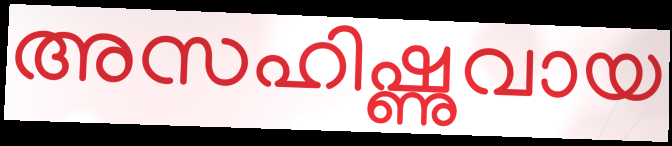
അസഹിഷ്ണുവായ